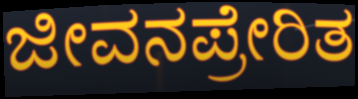
ಜೀವನಪ್ರೇರಿತ